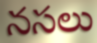
నసలు